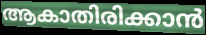
ആകാതിരിക്കാൻ